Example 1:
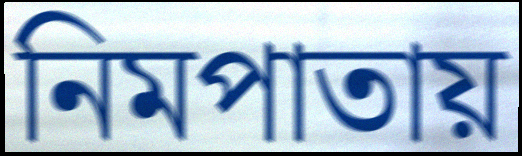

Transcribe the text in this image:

নিমপাতায়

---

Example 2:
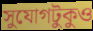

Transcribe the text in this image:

সুযোগটুকুও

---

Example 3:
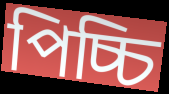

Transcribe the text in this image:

পিচ্চি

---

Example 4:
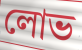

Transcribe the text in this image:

লোভ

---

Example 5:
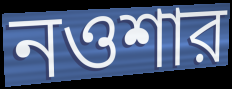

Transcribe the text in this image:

নওশার